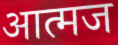
आत्मज